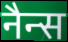
नैन्स